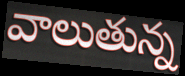
వాలుతున్న